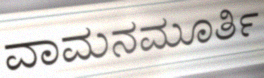
ವಾಮನಮೂರ್ತಿ